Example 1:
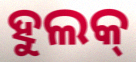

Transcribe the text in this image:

ହୁଲକ୍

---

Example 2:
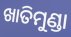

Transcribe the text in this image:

ଖାତିମୁଣ୍ଡା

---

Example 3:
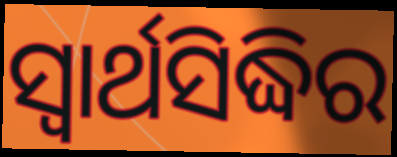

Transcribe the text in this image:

ସ୍ଵାର୍ଥସିଦ୍ଧିର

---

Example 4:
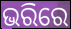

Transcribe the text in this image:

ଭରିରେ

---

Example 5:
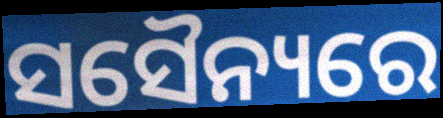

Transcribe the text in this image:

ସସୈନ୍ୟରେ